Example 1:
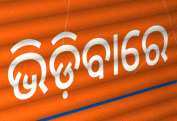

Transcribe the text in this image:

ଭିଡ଼ିବାରେ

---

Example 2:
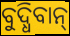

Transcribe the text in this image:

ବୁଦ୍ଧିବାନ୍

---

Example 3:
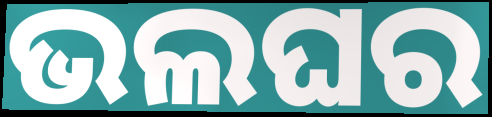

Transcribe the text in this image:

ଭଲଘର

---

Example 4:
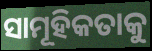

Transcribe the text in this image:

ସାମୂହିକତାକୁ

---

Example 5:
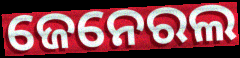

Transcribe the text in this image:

ଜେନେରଲ